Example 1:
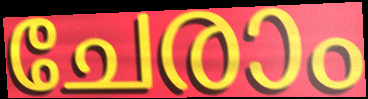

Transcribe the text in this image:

ചേരാം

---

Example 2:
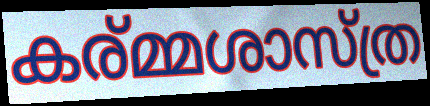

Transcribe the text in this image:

കര്മ്മശാസ്ത്ര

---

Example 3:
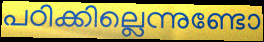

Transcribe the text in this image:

പഠിക്കില്ലെന്നുണ്ടോ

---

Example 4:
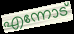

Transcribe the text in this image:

എന്നോട്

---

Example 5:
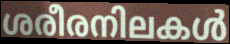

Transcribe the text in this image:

ശരീരനിലകൾ